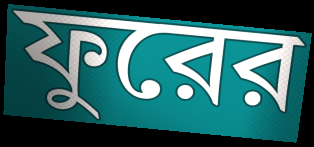
ফুরের